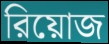
রিয়োজ